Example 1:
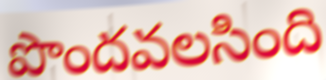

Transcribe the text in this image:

పొందవలసింది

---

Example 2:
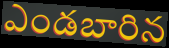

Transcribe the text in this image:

ఎండబారిన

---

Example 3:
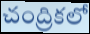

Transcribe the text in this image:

చంద్రికలో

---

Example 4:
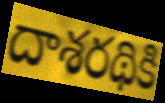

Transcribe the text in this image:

దాశరథికి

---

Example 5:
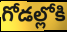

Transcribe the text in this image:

గోడల్లోకి